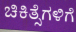
ಚಿಕಿತ್ಸೆಗಳಿಗೆ